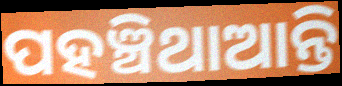
ପହଞ୍ଚିଥାଆନ୍ତି